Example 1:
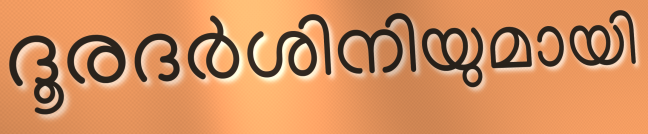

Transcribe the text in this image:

ദൂരദർശിനിയുമായി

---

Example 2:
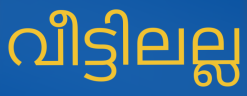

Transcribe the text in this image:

വീട്ടിലല്ല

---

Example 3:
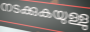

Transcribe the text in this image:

നടക്കുകയുള്ളു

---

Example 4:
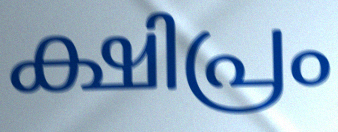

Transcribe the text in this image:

ക്ഷിപ്രം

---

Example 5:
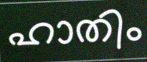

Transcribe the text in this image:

ഹാതിം